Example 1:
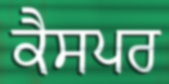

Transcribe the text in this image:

ਕੈਸਪਰ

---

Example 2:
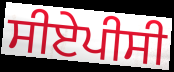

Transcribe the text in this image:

ਸੀਏਪੀਸੀ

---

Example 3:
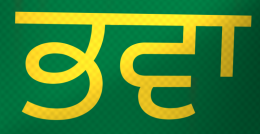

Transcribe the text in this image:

ਭਵਾ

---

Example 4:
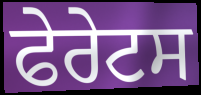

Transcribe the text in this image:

ਫੇਰੇਟਸ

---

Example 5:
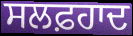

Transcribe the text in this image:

ਸਲਫ਼ਹਾਦ